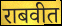
राबवीत